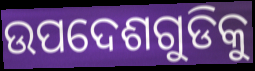
ଉପଦେଶଗୁଡିକୁ